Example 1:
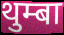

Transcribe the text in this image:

थुम्बा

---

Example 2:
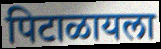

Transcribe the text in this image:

पिटाळायला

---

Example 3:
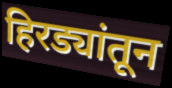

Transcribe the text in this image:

हिरड्यांतून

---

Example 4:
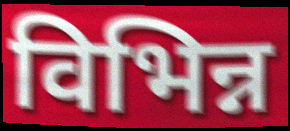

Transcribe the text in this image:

विभिन्न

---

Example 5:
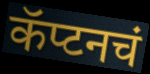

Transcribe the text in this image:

कॅप्टनचं